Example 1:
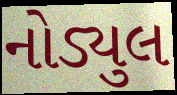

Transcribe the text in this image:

નોડ્યુલ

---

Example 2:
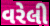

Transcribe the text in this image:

વરેલી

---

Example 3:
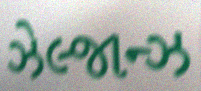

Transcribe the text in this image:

ઝેલ્જાન્ઝ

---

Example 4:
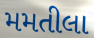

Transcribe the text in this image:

મમતીલા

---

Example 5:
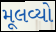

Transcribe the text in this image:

મૂલવ્યો